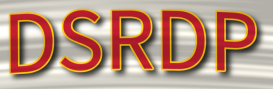
DSRDP